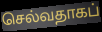
செல்வதாகப்